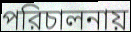
পরিচালনায়